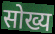
सोख्य